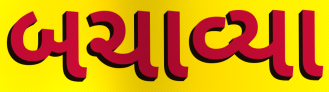
બચાવ્યા